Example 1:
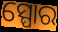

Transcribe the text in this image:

ସ୍ପୋର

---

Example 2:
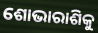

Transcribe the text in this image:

ଶୋଭାରାଶିକୁ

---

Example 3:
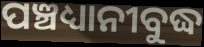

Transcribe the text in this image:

ପଞ୍ଚଧ୍ୟାନୀବୁଦ୍ଧ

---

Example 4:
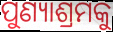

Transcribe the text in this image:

ପୁଣ୍ୟାଶ୍ରମକୁ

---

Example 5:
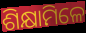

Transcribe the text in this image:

ଶିକ୍ଷାମିଳେ